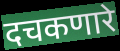
दचकणारे